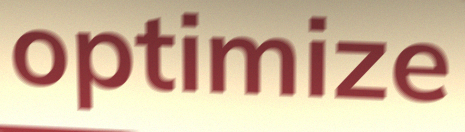
optimize